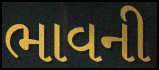
ભાવની